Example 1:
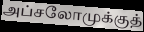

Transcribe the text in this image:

அப்சலோமுக்குத்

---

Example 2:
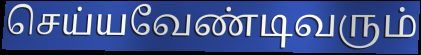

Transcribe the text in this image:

செய்யவேண்டிவரும்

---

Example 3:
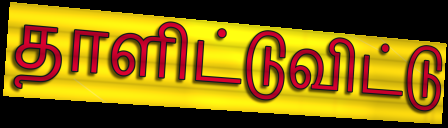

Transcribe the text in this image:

தாளிட்டுவிட்டு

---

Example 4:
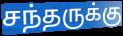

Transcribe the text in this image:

சந்தருக்கு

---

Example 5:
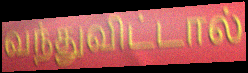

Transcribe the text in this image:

வந்துவிட்டால்